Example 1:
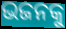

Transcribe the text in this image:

ଭଜନକୁ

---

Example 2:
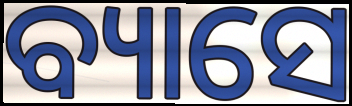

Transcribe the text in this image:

ବ୍ୟାସେ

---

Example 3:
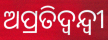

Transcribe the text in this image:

ଅପ୍ରତିଦ୍ବନ୍ଦ୍ବୀ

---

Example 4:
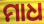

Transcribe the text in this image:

ମାଧ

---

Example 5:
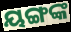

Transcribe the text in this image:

ୟଙ୍ଗଙ୍କ